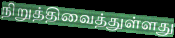
நிறுத்திவைத்துள்ளது